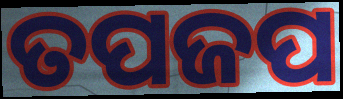
ତପଜପ